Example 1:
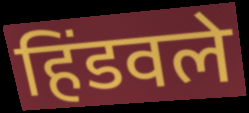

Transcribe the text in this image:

हिंडवले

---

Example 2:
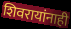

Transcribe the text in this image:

शिवरायांनाही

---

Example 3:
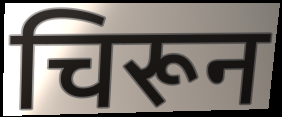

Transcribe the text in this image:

चिरून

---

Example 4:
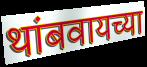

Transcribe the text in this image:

थांबवायच्या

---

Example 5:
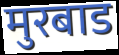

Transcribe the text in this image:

मुरबाड